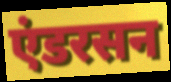
एंडरसन